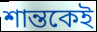
শান্তকেই